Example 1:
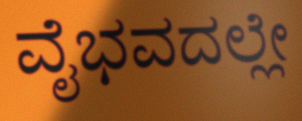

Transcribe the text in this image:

ವೈಭವದಲ್ಲೇ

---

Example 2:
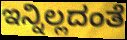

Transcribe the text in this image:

ಇನ್ನಿಲ್ಲದಂತೆ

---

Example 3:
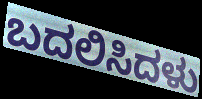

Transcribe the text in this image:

ಬದಲಿಸಿದಳು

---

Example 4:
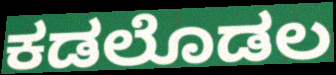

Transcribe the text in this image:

ಕಡಲೊಡಲ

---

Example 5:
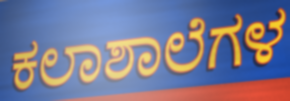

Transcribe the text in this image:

ಕಲಾಶಾಲೆಗಳ